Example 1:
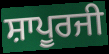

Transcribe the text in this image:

ਸ਼ਾਪੂਰਜੀ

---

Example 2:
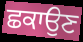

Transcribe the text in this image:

ਛਕਾਉਣ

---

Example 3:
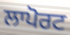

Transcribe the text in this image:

ਲਾਪੋਰਟ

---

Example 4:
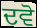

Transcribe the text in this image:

ਦਵੋ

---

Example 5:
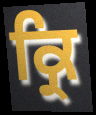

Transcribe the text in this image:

ਕ੍ਰਿ